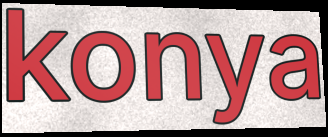
konya